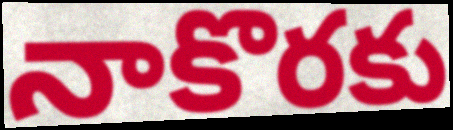
నాకొరకు